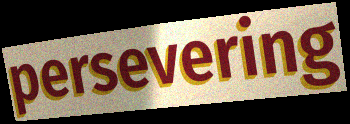
persevering